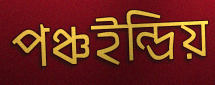
পঞ্চইন্দ্রিয়